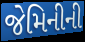
જેમિનીની